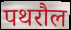
पथरौल